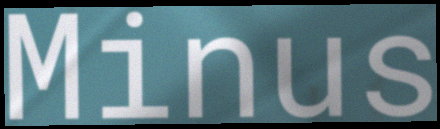
Minus